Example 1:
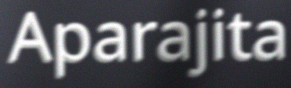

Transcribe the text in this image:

Aparajita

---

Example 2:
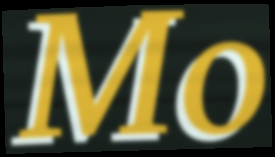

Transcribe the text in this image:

Mo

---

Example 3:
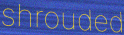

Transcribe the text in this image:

shrouded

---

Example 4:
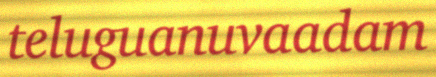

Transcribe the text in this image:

teluguanuvaadam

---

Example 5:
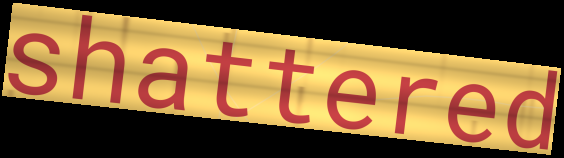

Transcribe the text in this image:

shattered